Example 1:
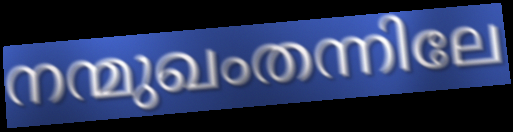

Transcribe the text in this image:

നന്മുഖംതന്നിലേ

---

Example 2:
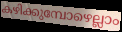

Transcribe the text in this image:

കഴിക്കുമ്പോഴെല്ലാം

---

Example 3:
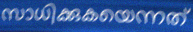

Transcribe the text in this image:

സാധിക്കുകയെന്നത്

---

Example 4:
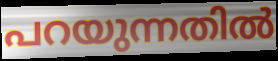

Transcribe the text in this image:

പറയുന്നതിൽ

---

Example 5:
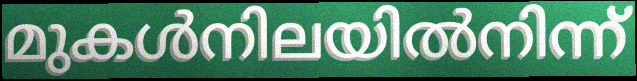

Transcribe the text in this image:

മുകൾനിലയിൽനിന്ന്